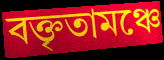
বক্তৃতামঞ্চে